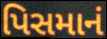
પિસમાનં